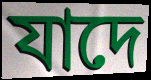
যাদে